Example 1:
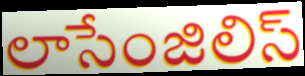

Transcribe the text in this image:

లాసేంజిలిస్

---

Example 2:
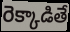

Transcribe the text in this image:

రెక్కాడితే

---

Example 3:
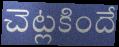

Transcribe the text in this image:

చెట్లకిందే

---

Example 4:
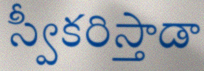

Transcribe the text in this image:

స్వీకరిస్తాడా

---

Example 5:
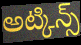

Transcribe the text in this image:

అట్కిన్స్